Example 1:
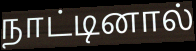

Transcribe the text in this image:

நாட்டினால்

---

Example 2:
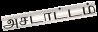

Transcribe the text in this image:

அசடாட்டம்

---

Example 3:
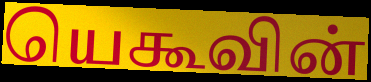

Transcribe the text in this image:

யெகூவின்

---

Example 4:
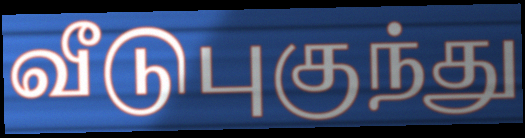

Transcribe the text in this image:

வீடுபுகுந்து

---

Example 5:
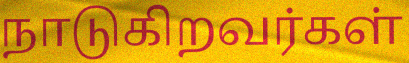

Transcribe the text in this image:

நாடுகிறவர்கள்